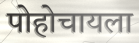
पोहोचायला